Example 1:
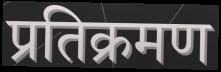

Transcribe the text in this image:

प्रतिक्रमण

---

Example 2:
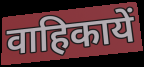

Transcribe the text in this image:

वाहिकायें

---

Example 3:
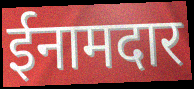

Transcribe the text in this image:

ईनामदार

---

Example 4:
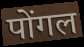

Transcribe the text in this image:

पोंगल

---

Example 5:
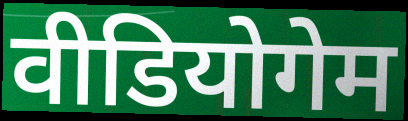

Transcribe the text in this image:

वीडियोगेम